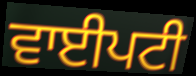
ਵਾਈਪਟੀ